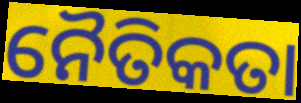
ନୈତିକତା